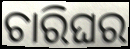
ଚାରିଘର